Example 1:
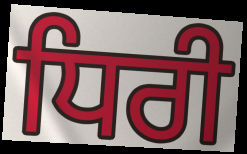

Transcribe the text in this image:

ਧਿਰੀ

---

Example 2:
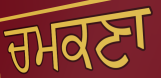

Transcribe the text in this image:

ਚਮਕਣਾ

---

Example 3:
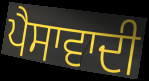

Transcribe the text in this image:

ਪੈਸਾਵਾਦੀ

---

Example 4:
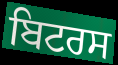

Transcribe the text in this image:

ਬਿਟਰਸ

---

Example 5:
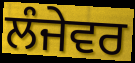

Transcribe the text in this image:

ਲੰਜੇਵਰ